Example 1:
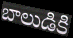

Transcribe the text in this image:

బాలుడికి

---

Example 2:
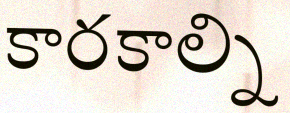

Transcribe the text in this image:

కారకాల్ని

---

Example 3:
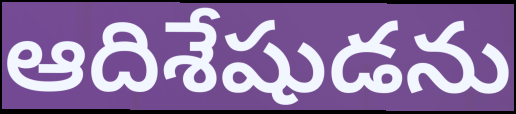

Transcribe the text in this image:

ఆదిశేషుడను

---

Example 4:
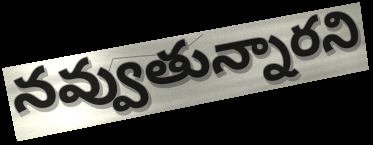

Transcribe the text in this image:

నవ్వుతున్నారని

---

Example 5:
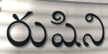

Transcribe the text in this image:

రుషిని